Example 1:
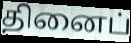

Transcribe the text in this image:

தினைப்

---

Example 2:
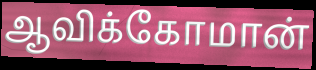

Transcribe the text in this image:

ஆவிக்கோமான்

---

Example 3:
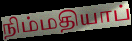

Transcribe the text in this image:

நிம்மதியாப்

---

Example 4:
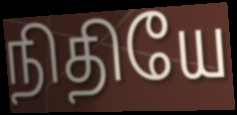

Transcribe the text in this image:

நிதியே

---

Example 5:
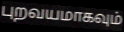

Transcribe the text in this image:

புறவயமாகவும்